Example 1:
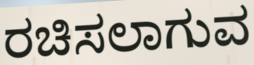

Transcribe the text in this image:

ರಚಿಸಲಾಗುವ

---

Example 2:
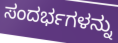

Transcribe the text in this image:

ಸಂದರ್ಭಗಳನ್ನು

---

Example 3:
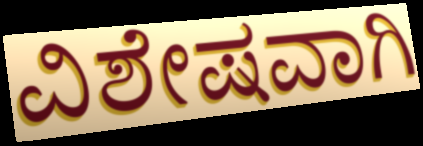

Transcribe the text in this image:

ವಿಶೇಷವಾಗಿ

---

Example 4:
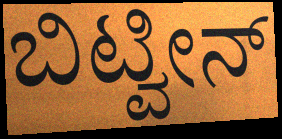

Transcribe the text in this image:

ಬಿಟ್ವೀನ್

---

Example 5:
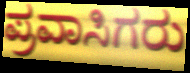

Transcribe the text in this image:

ಪ್ರವಾಸಿಗರು